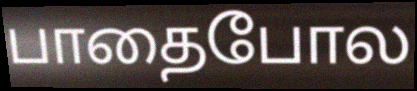
பாதைபோல